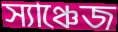
স্যাঞ্চেজ